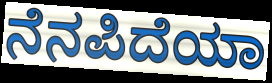
ನೆನಪಿದೆಯಾ